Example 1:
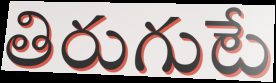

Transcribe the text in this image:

తిరుగుటే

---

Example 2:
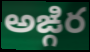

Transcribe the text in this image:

అఙ్గిర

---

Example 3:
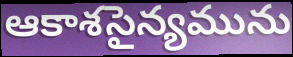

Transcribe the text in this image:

ఆకాశసైన్యమును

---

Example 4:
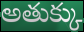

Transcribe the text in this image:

అతుక్కు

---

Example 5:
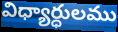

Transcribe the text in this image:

విధ్యార్ధులము